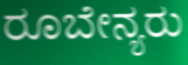
ರೂಬೇನ್ಯರು